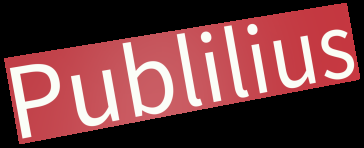
Publilius